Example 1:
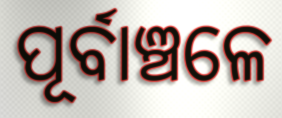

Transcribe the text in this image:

ପୂର୍ବାଞ୍ଚଳେ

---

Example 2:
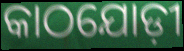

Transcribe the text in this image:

କାଠଯୋଡ଼ୀ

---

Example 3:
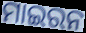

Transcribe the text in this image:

ମାଇରନ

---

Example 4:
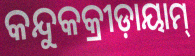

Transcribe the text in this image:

କନ୍ଦୁକକ୍ରୀଡ଼ାୟାମ୍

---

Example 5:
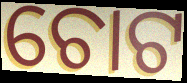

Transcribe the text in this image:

ଚୋଟ